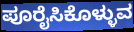
ಪೂರೈಸಿಕೊಳ್ಳುವ